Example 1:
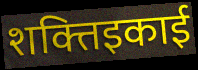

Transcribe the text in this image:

शक्तिइकाई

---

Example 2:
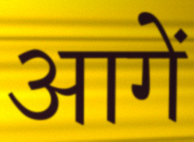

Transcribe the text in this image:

आगें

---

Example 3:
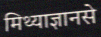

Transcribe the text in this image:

मिथ्याज्ञानसे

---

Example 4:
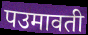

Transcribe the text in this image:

पउमावती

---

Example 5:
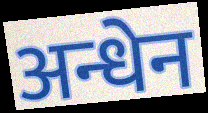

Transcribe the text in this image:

अन्धेन